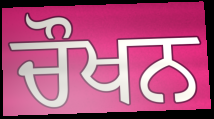
ਚੌਖਨ